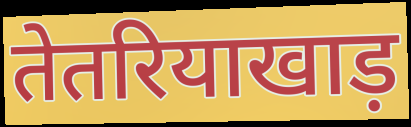
तेतरियाखाड़